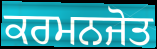
ਕਰਮਨਜੋਤ